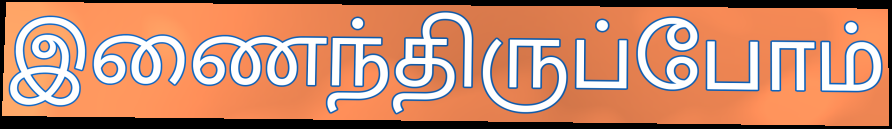
இணைந்திருப்போம்